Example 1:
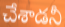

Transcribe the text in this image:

చేశాడనీ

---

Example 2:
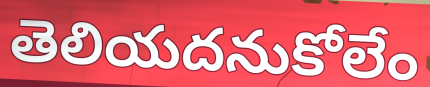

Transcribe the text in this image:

తెలియదనుకోలేం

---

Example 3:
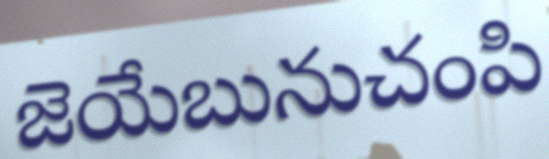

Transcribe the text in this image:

జెయేబునుచంపి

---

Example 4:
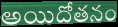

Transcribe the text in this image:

అయిదోతనం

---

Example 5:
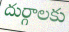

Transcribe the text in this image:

దుర్గాలకు